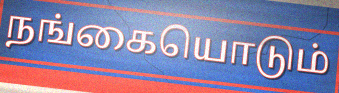
நங்கையொடும்